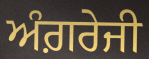
ਅੰਗ਼ਰੇਜੀ